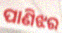
ପାଣିଝର